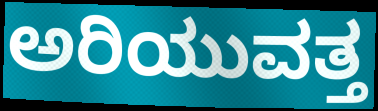
ಅರಿಯುವತ್ತ